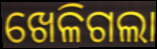
ଖେଳିଗଲା